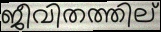
ജീവിതത്തില്